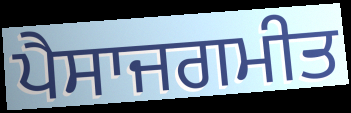
ਪੈਸਾਜਗਮੀਤ